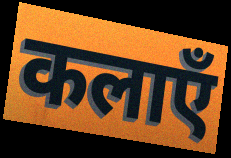
कलाएँ